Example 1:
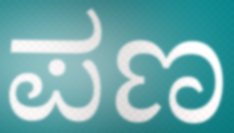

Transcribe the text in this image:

ಪಣ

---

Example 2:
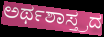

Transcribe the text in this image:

ಅರ್ಥಶಾಸ್ತ್ರದ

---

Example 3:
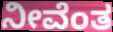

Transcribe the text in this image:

ನೀವೆಂತ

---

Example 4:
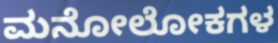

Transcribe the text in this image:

ಮನೋಲೋಕಗಳ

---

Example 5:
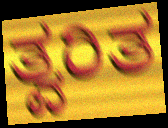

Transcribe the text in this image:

ತ್ವರಿತ